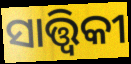
ସାତ୍ତ୍ୱିକୀ